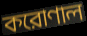
করোণাল